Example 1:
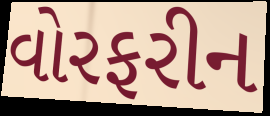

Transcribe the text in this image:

વોરફરીન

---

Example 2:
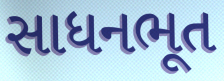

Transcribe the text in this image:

સાધનભૂત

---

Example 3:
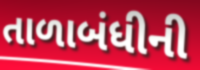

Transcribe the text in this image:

તાળાબંધીની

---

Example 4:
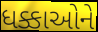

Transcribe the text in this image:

ધક્કાઓને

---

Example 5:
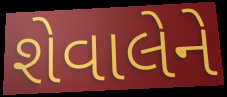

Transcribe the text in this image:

શેવાલેને